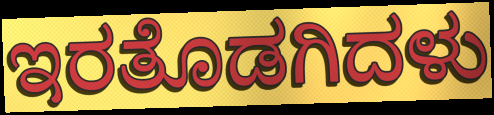
ಇರತೊಡಗಿದಳು